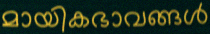
മായികഭാവങ്ങൾ